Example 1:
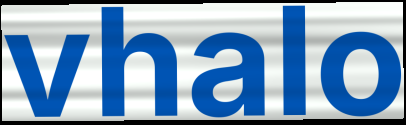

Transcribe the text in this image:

vhalo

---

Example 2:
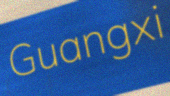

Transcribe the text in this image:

Guangxi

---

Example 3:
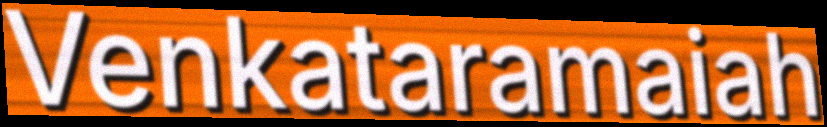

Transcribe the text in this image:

Venkataramaiah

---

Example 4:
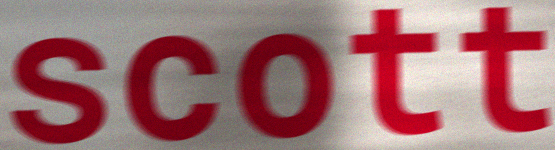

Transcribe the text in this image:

scott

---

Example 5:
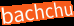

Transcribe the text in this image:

bachchu